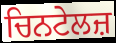
ਚਿਨਟੇਲਜ਼